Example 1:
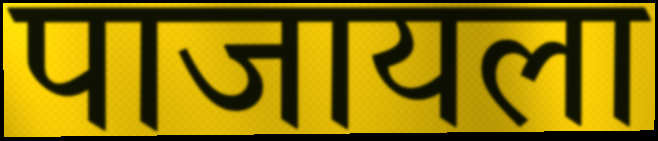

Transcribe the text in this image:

पाजायला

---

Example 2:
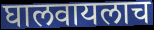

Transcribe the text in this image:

घालवायलाच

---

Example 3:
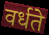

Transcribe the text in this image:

वर्धते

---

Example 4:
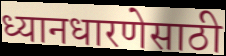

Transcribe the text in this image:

ध्यानधारणेसाठी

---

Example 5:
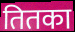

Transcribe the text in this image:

तितका